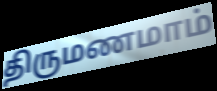
திருமணமாம்